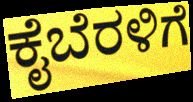
ಕೈಬೆರಳಿಗೆ